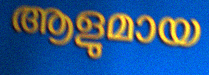
ആളുമായ